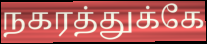
நகரத்துக்கே